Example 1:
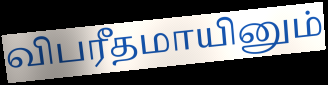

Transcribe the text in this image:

விபரீதமாயினும்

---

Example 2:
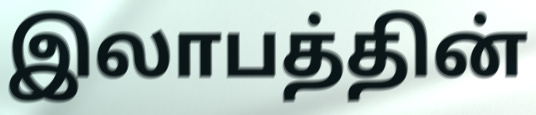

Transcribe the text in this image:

இலாபத்தின்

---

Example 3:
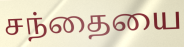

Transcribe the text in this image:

சந்தையை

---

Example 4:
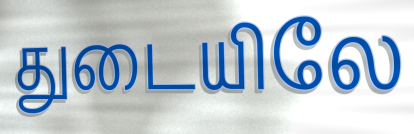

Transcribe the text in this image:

துடையிலே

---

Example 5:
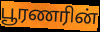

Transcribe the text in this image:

பூரணரின்